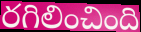
రగిలించింది